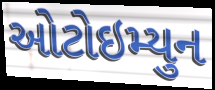
ઓટોઇમ્યુન